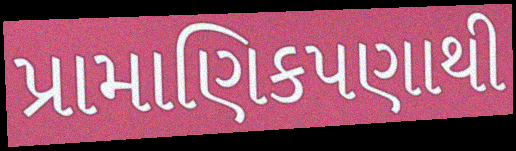
પ્રામાણિકપણાથી